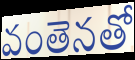
వంతెనతో